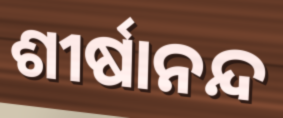
ଶୀର୍ଷାନନ୍ଦ